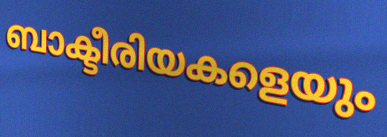
ബാക്ടീരിയകളെയും